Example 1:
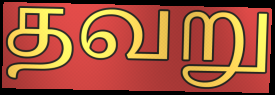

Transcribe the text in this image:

தவறு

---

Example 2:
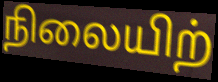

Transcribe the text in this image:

நிலையிற்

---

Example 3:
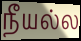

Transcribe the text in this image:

நீயல்ல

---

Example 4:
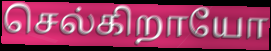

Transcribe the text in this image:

செல்கிறாயோ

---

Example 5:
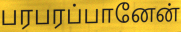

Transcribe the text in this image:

பரபரப்பானேன்